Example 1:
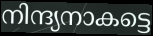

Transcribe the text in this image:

നിന്ദ്യനാകട്ടെ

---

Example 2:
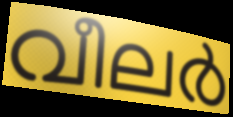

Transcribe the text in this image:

വീലർ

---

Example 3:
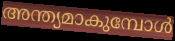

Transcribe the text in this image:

അന്ത്യമാകുമ്പോൾ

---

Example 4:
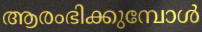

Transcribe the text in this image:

ആരംഭിക്കുമ്പോൾ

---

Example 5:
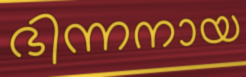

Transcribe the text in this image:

ഭിന്നനായ